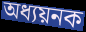
অধ্যয়নক